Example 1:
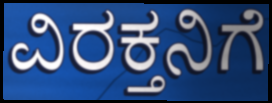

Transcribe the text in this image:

ವಿರಕ್ತನಿಗೆ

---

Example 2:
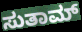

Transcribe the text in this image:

ಸುತಾಮ್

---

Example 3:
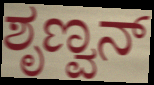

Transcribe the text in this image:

ಶೃಣ್ವನ್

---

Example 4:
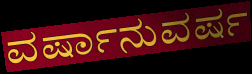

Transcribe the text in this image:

ವರ್ಷಾನುವರ್ಷ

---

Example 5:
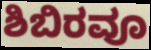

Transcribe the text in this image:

ಶಿಬಿರವೂ